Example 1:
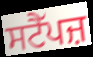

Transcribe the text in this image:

ਸਟੈੱਪਜ਼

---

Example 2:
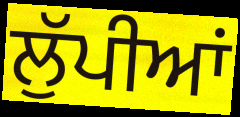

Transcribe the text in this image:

ਲੁੱਪੀਆਂ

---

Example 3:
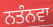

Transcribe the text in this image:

ਨਤੰਨਵਾ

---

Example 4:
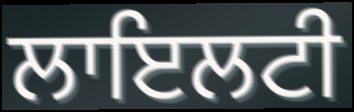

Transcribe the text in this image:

ਲਾਇਲਟੀ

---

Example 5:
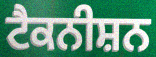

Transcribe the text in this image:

ਟੈਕਨੀਸ਼ਨ